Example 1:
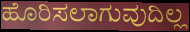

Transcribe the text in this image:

ಹೊರಿಸಲಾಗುವುದಿಲ್ಲ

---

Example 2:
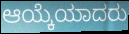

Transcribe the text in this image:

ಆಯ್ಕೆಯಾದರು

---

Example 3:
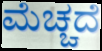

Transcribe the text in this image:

ಮೆಚ್ಚದೆ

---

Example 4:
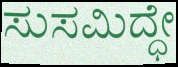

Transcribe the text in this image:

ಸುಸಮಿದ್ಧೇ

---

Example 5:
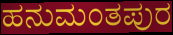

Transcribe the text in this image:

ಹನುಮಂತಪುರ